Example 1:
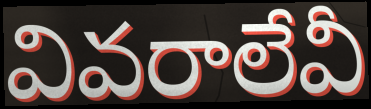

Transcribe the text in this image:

వివరాలేవీ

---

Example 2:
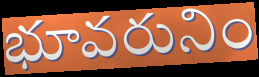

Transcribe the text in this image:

భూవరునిం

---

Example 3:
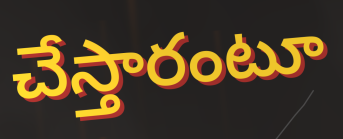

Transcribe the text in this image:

చేస్తారంటూ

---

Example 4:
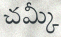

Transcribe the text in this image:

చమ్కీ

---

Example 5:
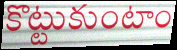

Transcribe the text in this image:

కొట్టుకుంటాం